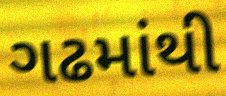
ગઢમાંથી